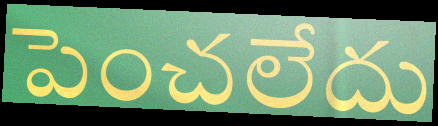
పెంచలేదు